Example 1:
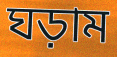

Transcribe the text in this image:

ঘড়াম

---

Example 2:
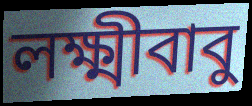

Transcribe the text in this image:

লক্ষ্মীবাবু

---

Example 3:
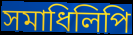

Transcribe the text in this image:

সমাধিলিপি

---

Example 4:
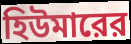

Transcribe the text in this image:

হিউমারের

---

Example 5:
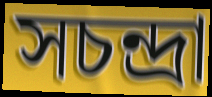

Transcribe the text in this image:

সচন্দ্রা